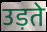
उड़ते